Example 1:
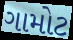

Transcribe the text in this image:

ગામોટ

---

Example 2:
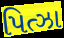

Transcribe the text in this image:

પિત્ઝા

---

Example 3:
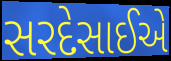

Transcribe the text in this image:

સરદેસાઈએ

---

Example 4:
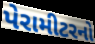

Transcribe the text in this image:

પેરામીટરનો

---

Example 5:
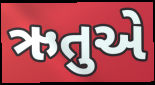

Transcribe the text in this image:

ઋતુએ